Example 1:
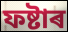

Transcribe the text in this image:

ফষ্টাৰ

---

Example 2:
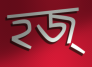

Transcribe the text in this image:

হজ্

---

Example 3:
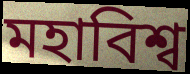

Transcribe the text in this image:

মহাবিশ্ব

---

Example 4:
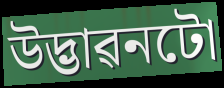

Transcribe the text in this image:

উদ্ভাৱনটো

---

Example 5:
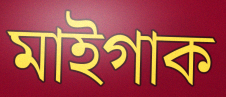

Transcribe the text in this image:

মাইগাক